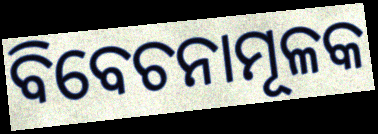
ବିବେଚନାମୂଳକ